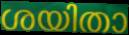
ശയിതാ